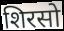
शिरसो